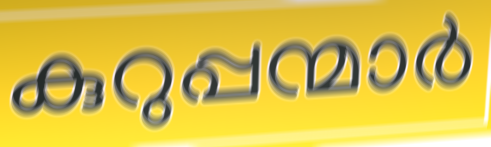
കുറുപ്പന്മാർ